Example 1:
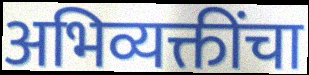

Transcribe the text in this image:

अभिव्यक्तींचा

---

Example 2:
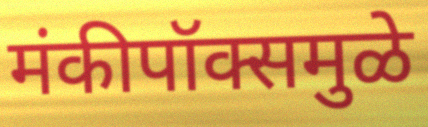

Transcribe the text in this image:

मंकीपॉक्समुळे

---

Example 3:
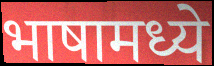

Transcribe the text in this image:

भाषामध्ये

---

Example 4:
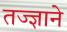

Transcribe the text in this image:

तज्ज्ञाने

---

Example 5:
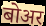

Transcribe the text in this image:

बोअर